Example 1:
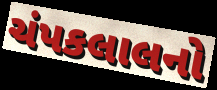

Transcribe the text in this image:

ચંપકલાલનો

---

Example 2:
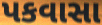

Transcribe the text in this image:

પકવાસા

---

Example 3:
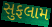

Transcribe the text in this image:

સુફલામ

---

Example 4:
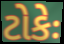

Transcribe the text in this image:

ટોકેઃ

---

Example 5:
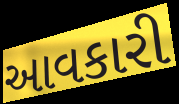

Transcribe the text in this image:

આવકારી